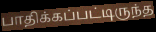
பாதிக்கப்பட்டிருந்த